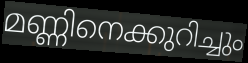
മണ്ണിനെക്കുറിച്ചും